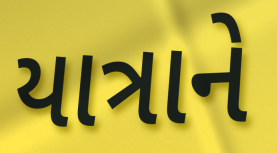
યાત્રાને